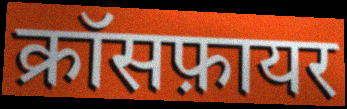
क्रॉसफ़ायर